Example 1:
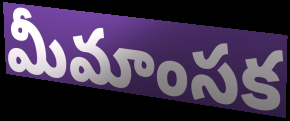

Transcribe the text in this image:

మీమాంసక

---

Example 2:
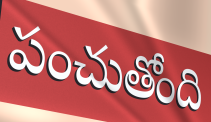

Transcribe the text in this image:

పంచుతోంది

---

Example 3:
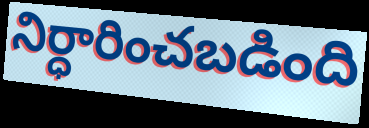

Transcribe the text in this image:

నిర్ధారించబడింది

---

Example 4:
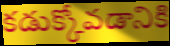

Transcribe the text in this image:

కడుక్కోవడానికి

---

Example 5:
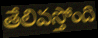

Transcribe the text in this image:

తేలివస్తోంది